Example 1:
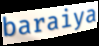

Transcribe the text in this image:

baraiya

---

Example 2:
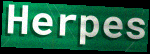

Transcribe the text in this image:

Herpes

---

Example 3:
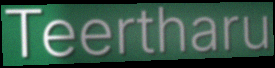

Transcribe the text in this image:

Teertharu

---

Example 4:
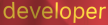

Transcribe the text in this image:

developer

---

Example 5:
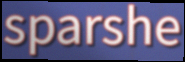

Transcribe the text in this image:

sparshe